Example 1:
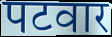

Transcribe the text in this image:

पटवार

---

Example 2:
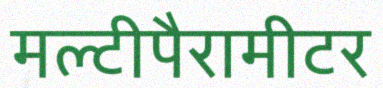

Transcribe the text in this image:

मल्टीपैरामीटर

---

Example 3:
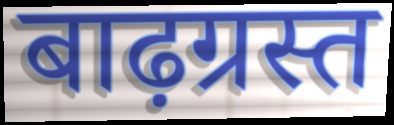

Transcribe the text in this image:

बाढ़ग्रस्त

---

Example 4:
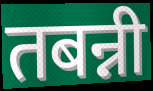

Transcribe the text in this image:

तबन्नी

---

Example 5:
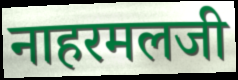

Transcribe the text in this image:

नाहरमलजी